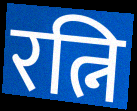
रत्नि